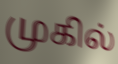
முகில்